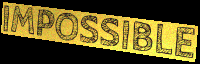
IMPOSSIBLE